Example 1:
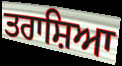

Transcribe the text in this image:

ਤਰਾਸ਼ਿਆ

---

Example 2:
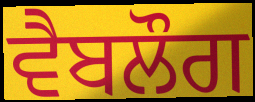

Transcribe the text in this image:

ਵੈਬਲੌਗ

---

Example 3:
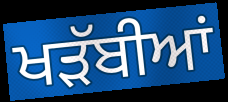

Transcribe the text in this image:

ਖੜੱਬੀਆਂ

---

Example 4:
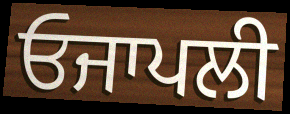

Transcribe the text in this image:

ਓਜਾਪਲੀ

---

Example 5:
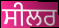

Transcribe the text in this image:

ਸੀਲਰ